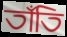
তাঁতি